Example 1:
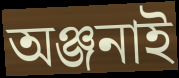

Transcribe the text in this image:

অঞ্জনাই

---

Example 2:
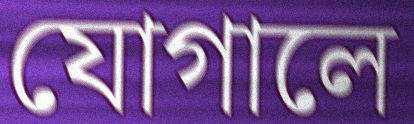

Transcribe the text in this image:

যোগালে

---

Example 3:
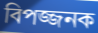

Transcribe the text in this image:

বিপজ্জনক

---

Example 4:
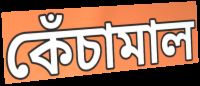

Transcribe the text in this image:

কেঁচামাল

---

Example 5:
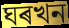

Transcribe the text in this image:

ঘৰখন